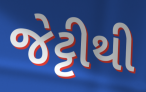
જેટ્ટીથી